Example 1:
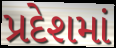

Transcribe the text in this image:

પ્રદેશમાં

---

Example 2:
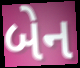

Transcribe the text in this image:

બેન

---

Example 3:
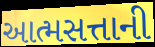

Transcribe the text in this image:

આત્મસત્તાની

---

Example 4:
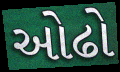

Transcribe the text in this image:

ઓઢો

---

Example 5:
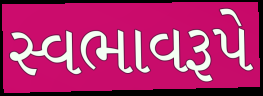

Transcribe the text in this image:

સ્વભાવરૂપે